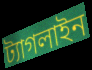
ট্যাগলাইন